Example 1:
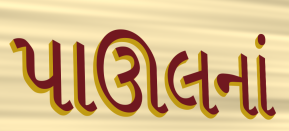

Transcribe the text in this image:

પાઊલનાં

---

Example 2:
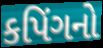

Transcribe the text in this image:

કપિંગનો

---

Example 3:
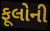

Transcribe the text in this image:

ફૂલોની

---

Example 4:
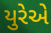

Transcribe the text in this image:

યુરેએ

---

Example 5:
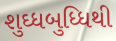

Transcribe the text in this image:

શુઘ્ધબુધ્ધિથી